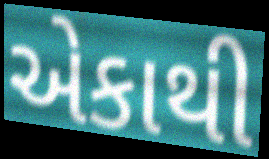
એકાથી